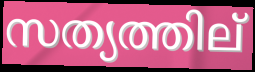
സത്യത്തില്